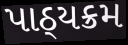
પાઠ્યક્રમ